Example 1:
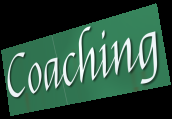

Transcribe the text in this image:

Coaching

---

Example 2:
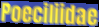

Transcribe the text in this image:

Poeciliidae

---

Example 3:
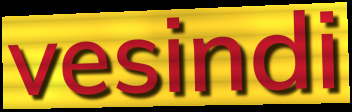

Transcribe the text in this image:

vesindi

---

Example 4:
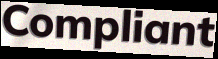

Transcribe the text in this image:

Compliant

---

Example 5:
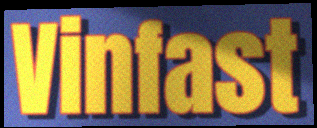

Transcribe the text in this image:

Vinfast